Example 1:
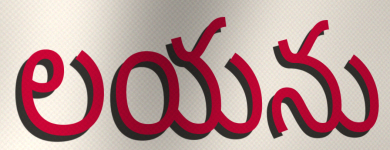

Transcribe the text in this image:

లయను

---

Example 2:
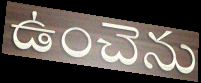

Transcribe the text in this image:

ఉంచెను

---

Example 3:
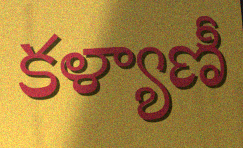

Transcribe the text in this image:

కళ్యాణీ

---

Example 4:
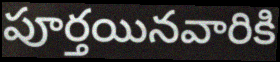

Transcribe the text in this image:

పూర్తయినవారికి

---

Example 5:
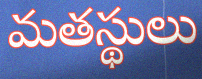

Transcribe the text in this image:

మతస్థులు